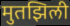
मुतझिली